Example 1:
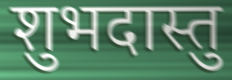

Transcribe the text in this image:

शुभदास्तु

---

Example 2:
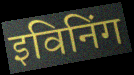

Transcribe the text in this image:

इविनिंग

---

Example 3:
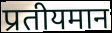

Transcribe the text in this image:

प्रतीयमान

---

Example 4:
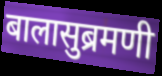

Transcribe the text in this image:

बालासुब्रमणी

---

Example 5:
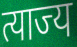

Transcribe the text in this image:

त्याज्य